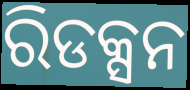
ରିଡକ୍ସନ